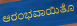
ಆರಂಭವಾಯಿತೊ